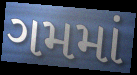
ગમમાં